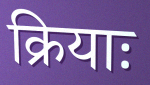
क्रियाः